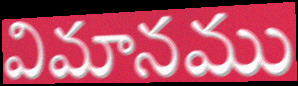
విమానము